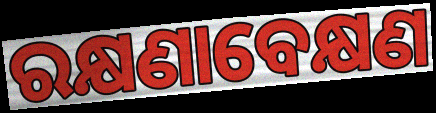
ରକ୍ଷଣାବେକ୍ଷଣ